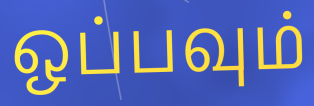
ஒப்பவும்